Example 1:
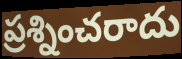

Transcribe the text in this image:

ప్రశ్నించరాదు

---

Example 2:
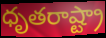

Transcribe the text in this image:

ధృతరాష్ట్రా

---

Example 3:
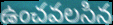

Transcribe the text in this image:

ఉంచవలసిన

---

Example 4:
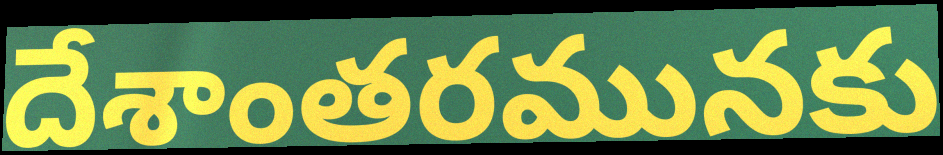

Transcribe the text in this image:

దేశాంతరమునకు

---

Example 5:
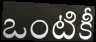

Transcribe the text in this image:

ఒంటికీ